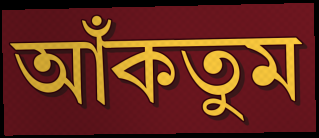
আঁকতুম